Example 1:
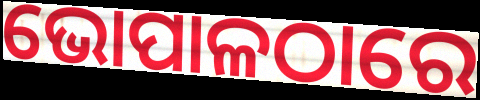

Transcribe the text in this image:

ଭୋପାଳଠାରେ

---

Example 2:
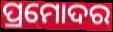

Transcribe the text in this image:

ପ୍ରମୋଦର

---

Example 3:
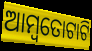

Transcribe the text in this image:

ଆମ୍ବତୋଟାଟି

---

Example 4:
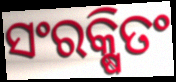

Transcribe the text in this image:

ସଂରକ୍ଷିତଂ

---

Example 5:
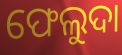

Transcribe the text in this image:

ଫେଲୁଦା